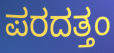
ಪರದತ್ತಂ